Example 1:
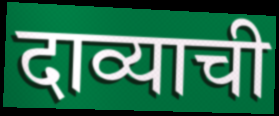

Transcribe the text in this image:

दाव्याची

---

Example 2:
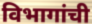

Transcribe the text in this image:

विभागांची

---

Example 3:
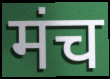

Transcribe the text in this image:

मंच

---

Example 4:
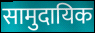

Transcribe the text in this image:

सामुदायिक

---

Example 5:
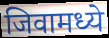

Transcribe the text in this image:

जिवामध्ये